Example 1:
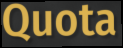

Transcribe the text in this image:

Quota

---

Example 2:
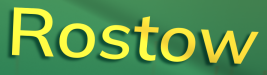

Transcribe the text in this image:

Rostow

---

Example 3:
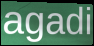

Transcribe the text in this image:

agadi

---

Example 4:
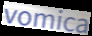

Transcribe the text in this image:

vomica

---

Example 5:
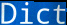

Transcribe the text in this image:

Dict